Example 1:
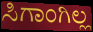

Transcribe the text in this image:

ಸಿಗಾಂಗಿಲ್ಲ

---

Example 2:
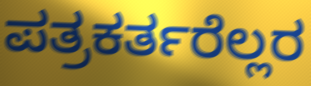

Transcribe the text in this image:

ಪತ್ರಕರ್ತರೆಲ್ಲರ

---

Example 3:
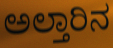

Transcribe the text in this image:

ಅಲ್ತಾರಿನ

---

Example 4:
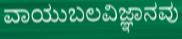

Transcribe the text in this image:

ವಾಯುಬಲವಿಜ್ಞಾನವು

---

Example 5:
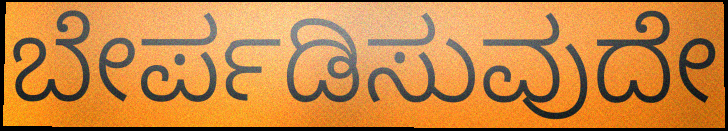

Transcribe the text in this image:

ಬೇರ್ಪಡಿಸುವುದೇ